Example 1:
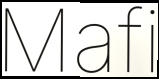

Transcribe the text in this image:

Mafi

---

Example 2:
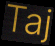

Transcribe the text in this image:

Taj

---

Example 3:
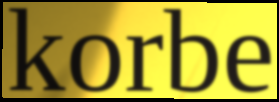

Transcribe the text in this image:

korbe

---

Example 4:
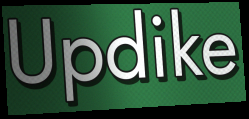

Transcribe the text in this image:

Updike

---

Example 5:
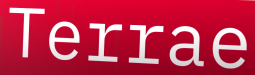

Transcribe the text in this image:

Terrae